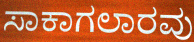
ಸಾಕಾಗಲಾರವು